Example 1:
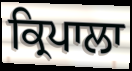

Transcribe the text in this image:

ਕ੍ਰਿਪਾਲਾ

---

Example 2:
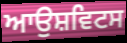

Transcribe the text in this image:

ਆਉਸ਼ਵਿਟਸ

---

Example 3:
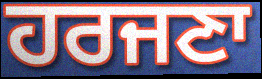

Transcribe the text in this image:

ਹਰਜਣਾ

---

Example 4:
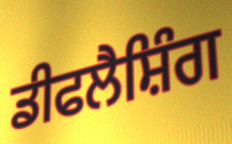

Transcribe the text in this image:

ਡੀਫਲੈਸ਼ਿੰਗ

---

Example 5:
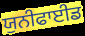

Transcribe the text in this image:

ਯੁਨੀਫਾਈਡ